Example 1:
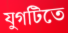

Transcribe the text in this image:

যুগটিতে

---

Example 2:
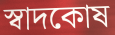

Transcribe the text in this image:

স্বাদকোষ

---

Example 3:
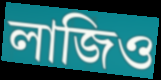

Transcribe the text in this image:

লাজিও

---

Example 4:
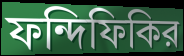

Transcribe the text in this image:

ফন্দিফিকির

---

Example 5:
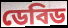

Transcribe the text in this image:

ডেবিড